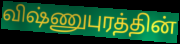
விஷ்ணுபுரத்தின்